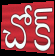
చోక్